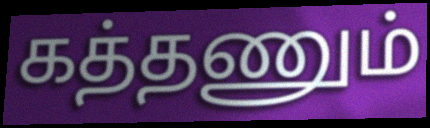
கத்தணும்